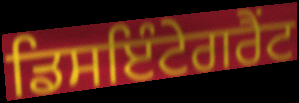
ਡਿਸਇੰਟੇਗਰੈਂਟ